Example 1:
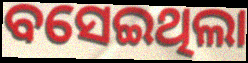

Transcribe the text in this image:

ବସେଇଥିଲା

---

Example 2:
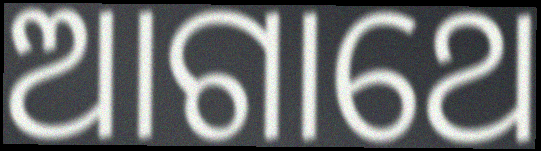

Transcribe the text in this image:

ଆଗାଥେ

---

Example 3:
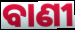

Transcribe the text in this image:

ବାଣୀ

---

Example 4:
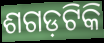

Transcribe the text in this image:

ଶଗଡ଼ଟିକି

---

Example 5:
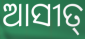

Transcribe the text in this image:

ଆସୀତ୍